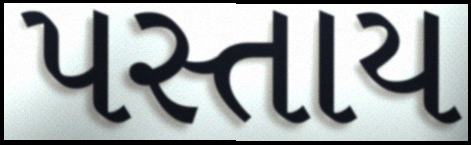
પસ્તાય